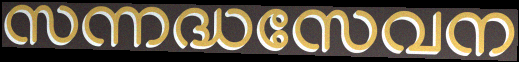
സന്നദ്ധസേവന